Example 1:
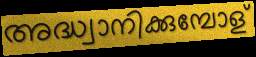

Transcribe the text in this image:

അദ്ധ്വാനിക്കുമ്പോള്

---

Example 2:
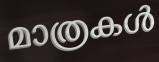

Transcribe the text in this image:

മാത്രകൾ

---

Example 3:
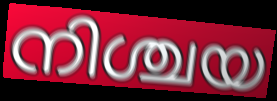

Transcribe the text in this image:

നിശ്ചയ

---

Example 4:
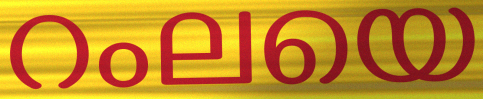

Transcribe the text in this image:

റംലയെ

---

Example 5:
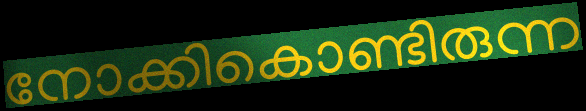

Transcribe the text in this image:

നോക്കികൊണ്ടിരുന്ന